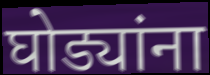
घोड्यांना